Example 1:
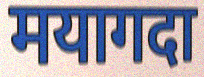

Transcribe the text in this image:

मयागदा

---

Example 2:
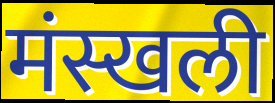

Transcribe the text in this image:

मंस्खली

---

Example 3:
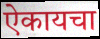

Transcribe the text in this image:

ऐकायचा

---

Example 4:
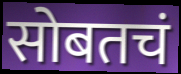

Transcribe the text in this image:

सोबतचं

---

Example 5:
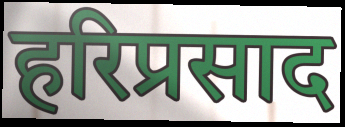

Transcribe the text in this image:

हरिप्रसाद